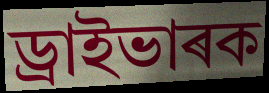
ড্ৰাইভাৰক